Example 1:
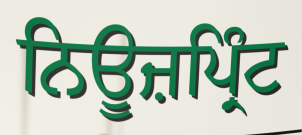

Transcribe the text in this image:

ਨਿਊਜ਼ਪ੍ਰਿੰਟ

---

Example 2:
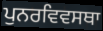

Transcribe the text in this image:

ਪੁਨਰਵਿਵਸਥਾ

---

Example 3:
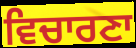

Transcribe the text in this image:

ਵਿਚਾਰਣਾ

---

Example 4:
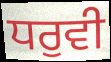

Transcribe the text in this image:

ਧਰੁਵੀ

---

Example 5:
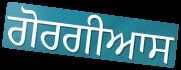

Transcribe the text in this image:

ਗੋਰਗੀਆਸ